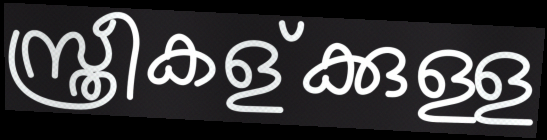
സ്ത്രീകള്ക്കുള്ള